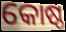
କୋଷ୍ଠ